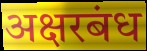
अक्षरबंध